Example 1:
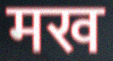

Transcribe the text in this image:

मख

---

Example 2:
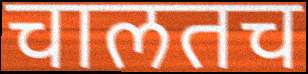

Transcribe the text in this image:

चालतच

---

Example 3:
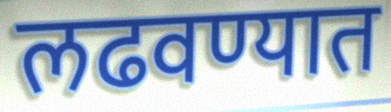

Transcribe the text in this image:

लढवण्यात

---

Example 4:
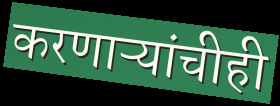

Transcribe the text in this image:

करणाऱ्यांचीही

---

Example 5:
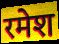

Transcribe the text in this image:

रमेश